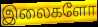
இலைகளோ